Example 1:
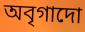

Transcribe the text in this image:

অবৃগাদো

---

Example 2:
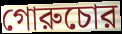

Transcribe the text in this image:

গোরুচোর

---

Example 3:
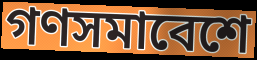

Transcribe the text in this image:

গণসমাবেশে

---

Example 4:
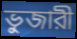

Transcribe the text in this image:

ভুজারী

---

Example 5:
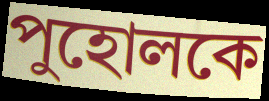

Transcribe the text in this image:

পুহোলকে